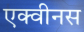
एक्वीनस